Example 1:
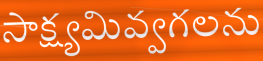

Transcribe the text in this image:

సాక్ష్యమివ్వగలను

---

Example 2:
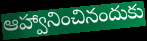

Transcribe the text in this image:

ఆహ్వానించినందుకు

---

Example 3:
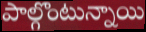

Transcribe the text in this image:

పాల్గొంటున్నాయి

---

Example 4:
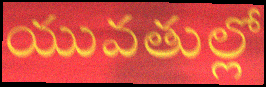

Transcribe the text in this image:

యువతుల్లో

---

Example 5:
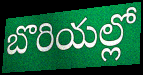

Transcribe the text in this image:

బొరియల్లో